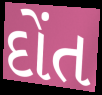
દોંત